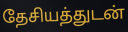
தேசியத்துடன்